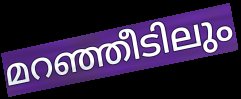
മറഞ്ഞീടിലും